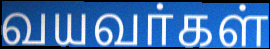
வயவர்கள்